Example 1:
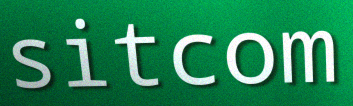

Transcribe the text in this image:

sitcom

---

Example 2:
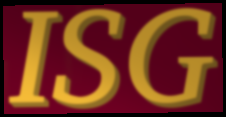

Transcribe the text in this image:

ISG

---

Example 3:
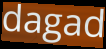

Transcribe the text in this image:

dagad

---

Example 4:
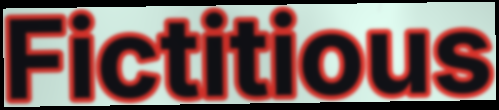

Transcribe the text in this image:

Fictitious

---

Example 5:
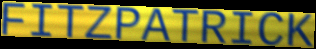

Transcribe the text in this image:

FITZPATRICK